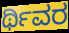
ರ್ಥಿವರ